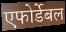
एफोर्डेबल